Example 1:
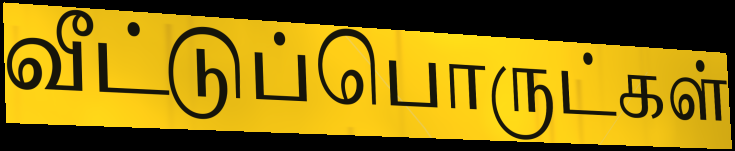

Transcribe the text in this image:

வீட்டுப்பொருட்கள்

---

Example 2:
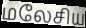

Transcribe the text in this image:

மலேசிய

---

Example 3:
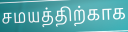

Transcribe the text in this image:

சமயத்திற்காக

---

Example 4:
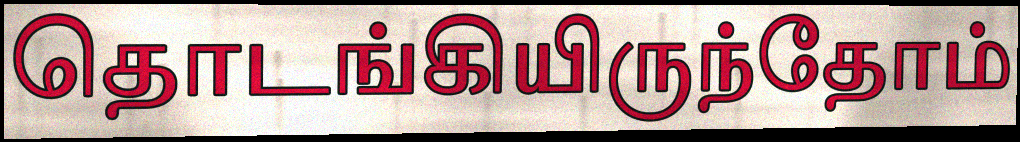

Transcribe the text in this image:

தொடங்கியிருந்தோம்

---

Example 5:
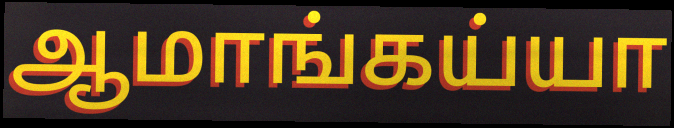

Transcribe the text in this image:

ஆமாங்கய்யா